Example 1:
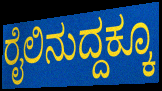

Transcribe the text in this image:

ರೈಲಿನುದ್ದಕ್ಕೂ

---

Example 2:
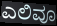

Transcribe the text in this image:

ಎಲಿವೂ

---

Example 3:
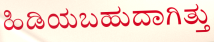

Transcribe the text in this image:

ಹಿಡಿಯಬಹುದಾಗಿತ್ತು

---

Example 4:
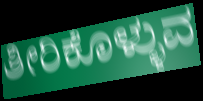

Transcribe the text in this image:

ತೀರಿಕೊಳ್ಳುವ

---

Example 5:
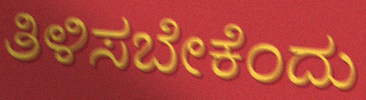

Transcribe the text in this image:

ತಿಳಿಸಬೇಕೆಂದು